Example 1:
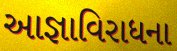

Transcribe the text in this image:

આજ્ઞાવિરાધના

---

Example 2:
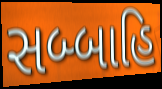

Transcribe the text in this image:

સબ્બાહિ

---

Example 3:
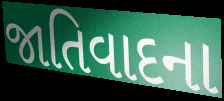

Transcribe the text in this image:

જાતિવાદના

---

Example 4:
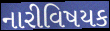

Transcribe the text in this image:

નારીવિષયક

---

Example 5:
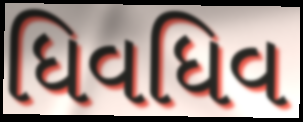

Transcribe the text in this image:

ધિવધિવ